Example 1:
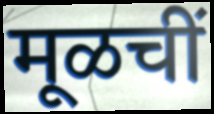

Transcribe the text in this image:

मूळचीं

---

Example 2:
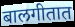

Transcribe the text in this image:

बालगीतात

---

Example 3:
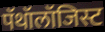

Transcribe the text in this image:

पॅथॉलॉजिस्ट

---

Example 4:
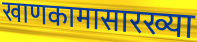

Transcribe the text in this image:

खाणकामासारख्या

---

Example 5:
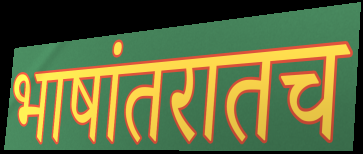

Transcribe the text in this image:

भाषांतरातच